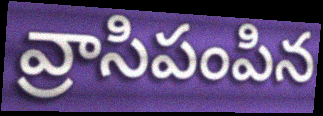
వ్రాసిపంపిన